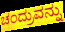
ಚಂದ್ರುವನ್ನು